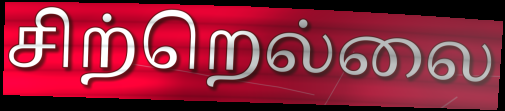
சிற்றெல்லை